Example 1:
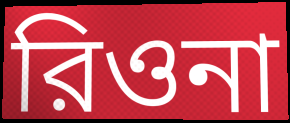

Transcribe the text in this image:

রিওনা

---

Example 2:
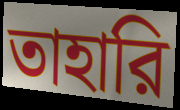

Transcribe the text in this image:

তাহারি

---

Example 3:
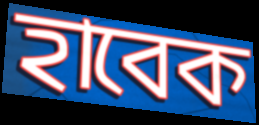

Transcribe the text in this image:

হাবেক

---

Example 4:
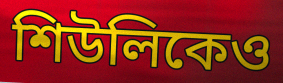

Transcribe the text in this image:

শিউলিকেও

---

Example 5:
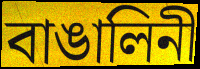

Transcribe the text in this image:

বাঙালিনী